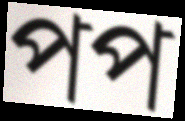
পপ